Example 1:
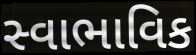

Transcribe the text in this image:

સ્વાભાવિક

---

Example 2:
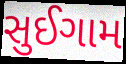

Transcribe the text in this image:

સુઈગામ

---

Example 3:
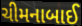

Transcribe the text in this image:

ચીમનાબાઈ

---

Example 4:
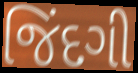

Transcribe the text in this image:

જિંદગી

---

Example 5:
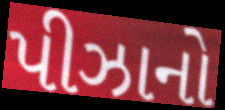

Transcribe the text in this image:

પીઝાનો